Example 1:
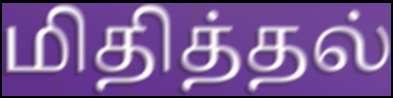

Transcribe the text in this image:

மிதித்தல்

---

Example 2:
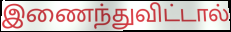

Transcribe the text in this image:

இணைந்துவிட்டால்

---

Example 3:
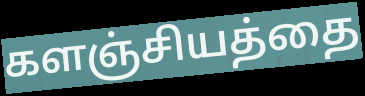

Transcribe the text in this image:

களஞ்சியத்தை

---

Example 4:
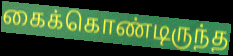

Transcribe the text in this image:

கைக்கொண்டிருந்த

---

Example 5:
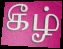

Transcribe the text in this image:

கீழ்